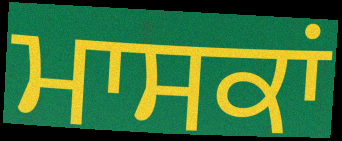
ਮਾਸਕਾਂ